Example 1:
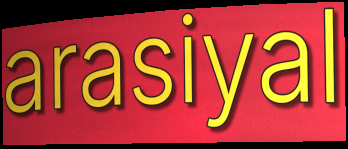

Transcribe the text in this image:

arasiyal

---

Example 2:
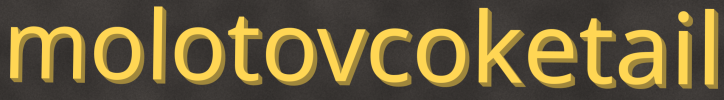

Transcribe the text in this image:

molotovcoketail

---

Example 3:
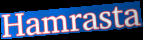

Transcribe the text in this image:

Hamrasta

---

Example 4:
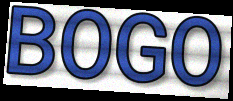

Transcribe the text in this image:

BOGO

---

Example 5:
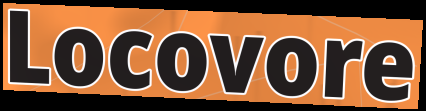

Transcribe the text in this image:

Locovore